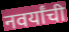
नवर्यांची